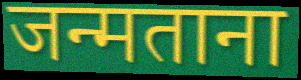
जन्मताना